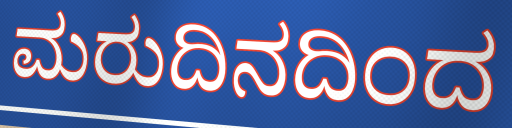
ಮರುದಿನದಿಂದ